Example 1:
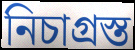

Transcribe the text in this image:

নিচাগ্ৰস্ত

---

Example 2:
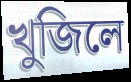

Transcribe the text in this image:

খুজিলে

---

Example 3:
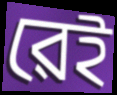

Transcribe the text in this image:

ৱেই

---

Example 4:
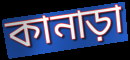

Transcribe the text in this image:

কানাড়া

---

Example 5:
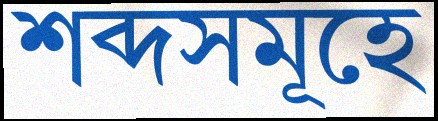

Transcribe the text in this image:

শব্দসমূহে